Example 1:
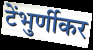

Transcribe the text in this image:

टेंभुर्णीकर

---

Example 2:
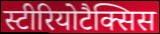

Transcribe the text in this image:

स्टीरियोटैक्सिस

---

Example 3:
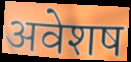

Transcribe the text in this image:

अवेशष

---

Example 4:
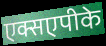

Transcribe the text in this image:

एक्सएपीके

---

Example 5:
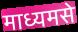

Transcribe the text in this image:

माध्यमसे